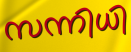
സന്നിധി